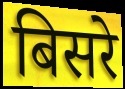
बिसरे